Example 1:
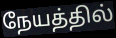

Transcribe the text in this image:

நேயத்தில்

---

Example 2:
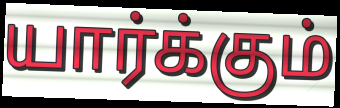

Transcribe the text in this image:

யார்க்கும்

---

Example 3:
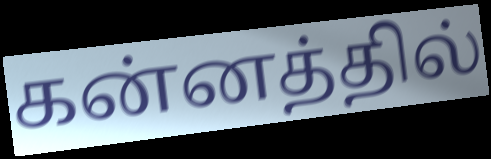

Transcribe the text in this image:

கன்னத்தில்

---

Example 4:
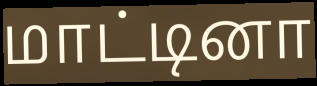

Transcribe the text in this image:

மாட்டினா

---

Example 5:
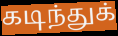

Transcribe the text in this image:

கடிந்துக்